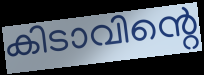
കിടാവിന്റെ